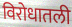
विरोधातली